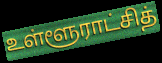
உள்ளூராட்சித்